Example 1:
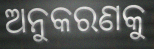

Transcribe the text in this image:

ଅନୁକରଣକୁ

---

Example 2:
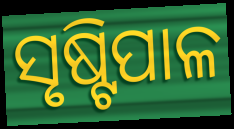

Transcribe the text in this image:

ସୃଷ୍ଟିପାଳ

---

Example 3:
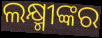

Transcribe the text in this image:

ଲକ୍ଷ୍ମୀଙ୍କର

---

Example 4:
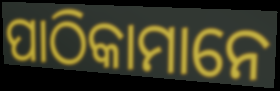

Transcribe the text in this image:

ପାଠିକାମାନେ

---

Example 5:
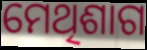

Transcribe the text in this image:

ମେଥିଶାଗ